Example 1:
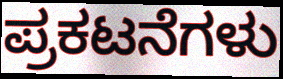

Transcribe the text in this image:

ಪ್ರಕಟನೆಗಳು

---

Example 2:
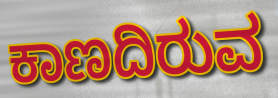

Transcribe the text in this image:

ಕಾಣದಿರುವ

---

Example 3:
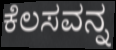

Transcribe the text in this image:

ಕೆಲಸವನ್ನ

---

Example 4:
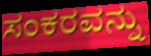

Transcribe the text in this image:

ಸಂಕರವನ್ನು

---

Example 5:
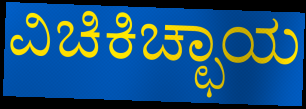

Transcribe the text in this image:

ವಿಚಿಕಿಚ್ಛಾಯ